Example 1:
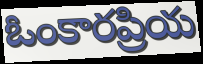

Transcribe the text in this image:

ఓంకారప్రియ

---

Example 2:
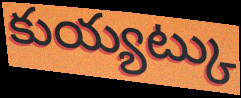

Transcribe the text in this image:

కుయ్యట్కు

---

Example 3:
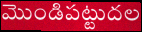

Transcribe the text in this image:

మొండిపట్టుదల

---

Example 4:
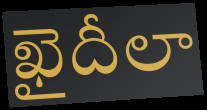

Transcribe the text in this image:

ఖైదీలా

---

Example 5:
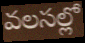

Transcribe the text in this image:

వలసల్లో